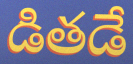
డితడే